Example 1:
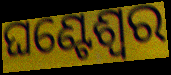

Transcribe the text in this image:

ଘଣ୍ଟେଶ୍ୱର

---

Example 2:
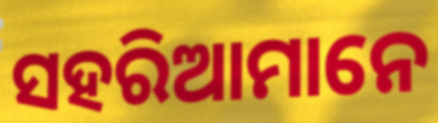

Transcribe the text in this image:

ସହରିଆମାନେ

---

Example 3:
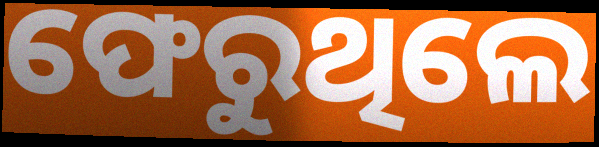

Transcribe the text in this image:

ଫେରୁଥିଲେ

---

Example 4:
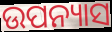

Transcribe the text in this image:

ଉପନ୍ୟାସ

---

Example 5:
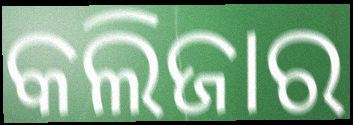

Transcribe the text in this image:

କଲିଜାର